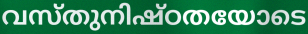
വസ്തുനിഷ്ഠതയോടെ